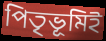
পিতৃভূমিই